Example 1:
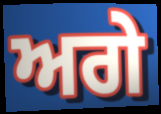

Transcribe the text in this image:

ਅਗੇ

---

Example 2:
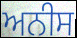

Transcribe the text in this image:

ਅਨੀਸ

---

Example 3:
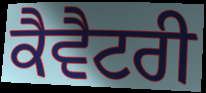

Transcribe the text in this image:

ਕੈਵੈਟਰੀ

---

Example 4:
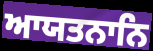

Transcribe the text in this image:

ਆਯਤਨਾਨਿ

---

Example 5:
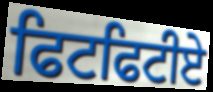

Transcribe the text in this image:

ਫਿਟਫਿਟੀਏ